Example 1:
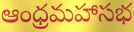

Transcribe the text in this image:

ఆంధ్రమహాసభ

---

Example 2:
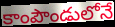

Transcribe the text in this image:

కాంపౌండులోనే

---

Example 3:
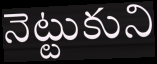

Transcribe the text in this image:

నెట్టుకుని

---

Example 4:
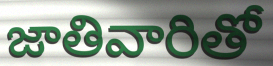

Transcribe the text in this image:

జాతివారితో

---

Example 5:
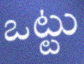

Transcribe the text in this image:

ఒట్టు